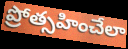
ప్రోత్సహించేలా